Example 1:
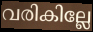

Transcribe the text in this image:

വരികില്ലേ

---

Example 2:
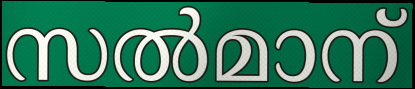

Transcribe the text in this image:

സൽമാന്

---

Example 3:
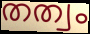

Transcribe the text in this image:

തത്വം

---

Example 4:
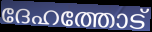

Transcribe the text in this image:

ദേഹത്തോട്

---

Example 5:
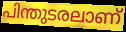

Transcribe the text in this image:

പിന്തുടരലാണ്